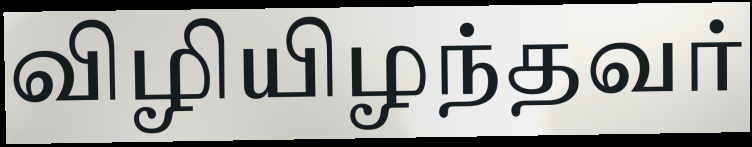
விழியிழந்தவர்